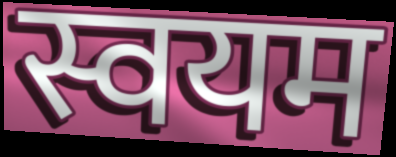
स्वयम